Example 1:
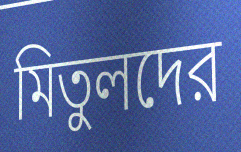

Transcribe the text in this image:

মিতুলদের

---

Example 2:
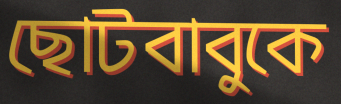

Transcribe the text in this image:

ছোটবাবুকে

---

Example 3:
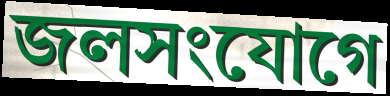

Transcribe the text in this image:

জলসংযোগে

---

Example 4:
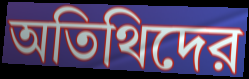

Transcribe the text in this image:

অতিথিদের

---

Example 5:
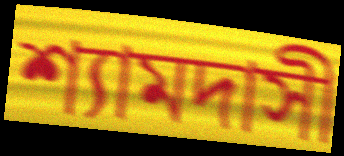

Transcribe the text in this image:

শ্যামদাসী